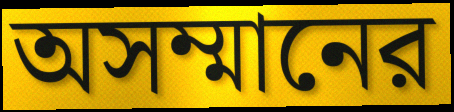
অসম্মানের